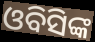
ଓବିସିଙ୍କ